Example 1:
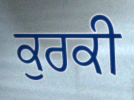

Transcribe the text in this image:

ਕੁਰਕੀ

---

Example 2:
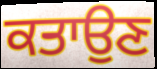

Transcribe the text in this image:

ਕਤਾਉਣ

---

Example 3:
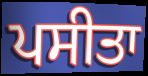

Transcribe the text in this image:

ਪਸੀਤਾ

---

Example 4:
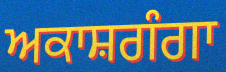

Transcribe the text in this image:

ਅਕਾਸ਼ਗੰਗਾ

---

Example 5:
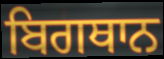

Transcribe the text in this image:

ਬਿਗਥਾਨ